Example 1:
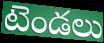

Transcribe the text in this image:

టెండలు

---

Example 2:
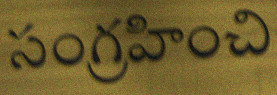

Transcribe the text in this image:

సంగ్రహించి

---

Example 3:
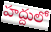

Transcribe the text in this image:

హద్దులో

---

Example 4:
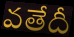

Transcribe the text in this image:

వతేదీ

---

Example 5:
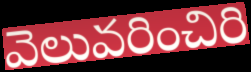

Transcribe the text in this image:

వెలువరించిరి